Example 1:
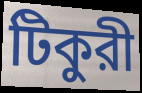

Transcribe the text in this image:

টিকুরী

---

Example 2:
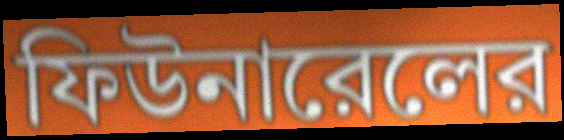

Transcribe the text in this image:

ফিউনারেলের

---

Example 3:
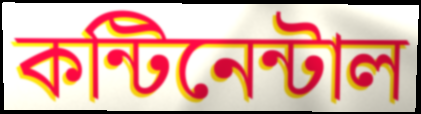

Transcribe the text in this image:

কন্টিনেন্টাল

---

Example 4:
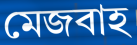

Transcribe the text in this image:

মেজবাহ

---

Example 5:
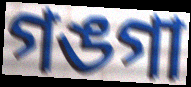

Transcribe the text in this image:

গঙগা